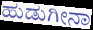
ಹುಡುಗೀನಾ